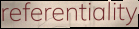
referentiality